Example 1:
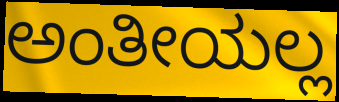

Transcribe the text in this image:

ಅಂತೀಯಲ್ಲ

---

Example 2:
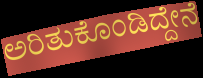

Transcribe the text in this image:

ಅರಿತುಕೊಂಡಿದ್ದೇನೆ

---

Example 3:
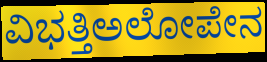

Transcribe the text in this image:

ವಿಭತ್ತಿಅಲೋಪೇನ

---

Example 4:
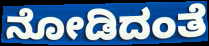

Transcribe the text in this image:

ನೋಡಿದಂತೆ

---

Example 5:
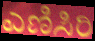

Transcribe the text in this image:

ಎಣಿಸಿರಿ